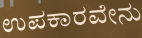
ಉಪಕಾರವೇನು